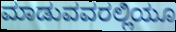
ಮಾಡುವವರಲ್ಲಿಯೂ